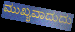
ಮುಖ್ಯವಾದುದು